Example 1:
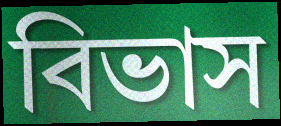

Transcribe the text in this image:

বিভাস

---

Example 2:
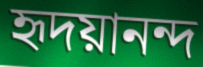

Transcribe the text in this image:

হৃদয়ানন্দ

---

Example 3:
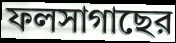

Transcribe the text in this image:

ফলসাগাছের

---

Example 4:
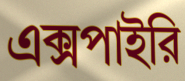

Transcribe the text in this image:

এক্সপাইরি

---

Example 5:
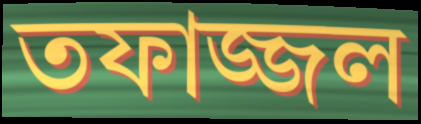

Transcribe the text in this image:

তফাজ্জল